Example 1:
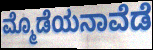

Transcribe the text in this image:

ಮ್ಮೊಡೆಯನಾವೆಡೆ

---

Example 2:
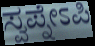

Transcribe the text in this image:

ಸ್ವಪ್ನೇಽಪಿ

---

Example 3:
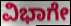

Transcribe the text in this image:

ವಿಭಾಗೇ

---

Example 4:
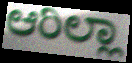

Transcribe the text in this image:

ಆರಿಲ್ಲಾ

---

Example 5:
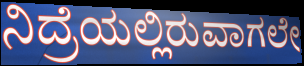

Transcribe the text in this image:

ನಿದ್ರೆಯಲ್ಲಿರುವಾಗಲೇ